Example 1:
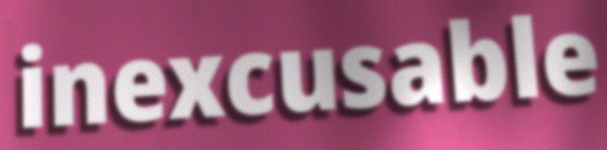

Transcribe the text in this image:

inexcusable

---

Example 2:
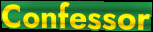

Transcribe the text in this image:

Confessor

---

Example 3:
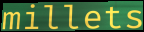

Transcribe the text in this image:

millets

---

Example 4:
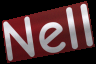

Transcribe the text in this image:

Nell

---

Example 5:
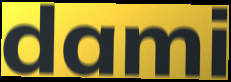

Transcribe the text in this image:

dami